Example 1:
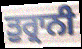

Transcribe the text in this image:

ਤੁਰ੍ਰਾਨੀ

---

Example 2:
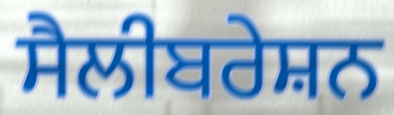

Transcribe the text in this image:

ਸੈਲੀਬਰੇਸ਼ਨ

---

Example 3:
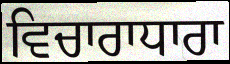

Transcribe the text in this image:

ਵਿਚਾਰਾਧਾਰਾ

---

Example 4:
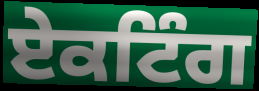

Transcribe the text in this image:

ਏਕਟਿੰਗ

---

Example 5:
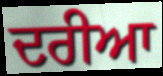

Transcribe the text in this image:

ਦਰੀਆ